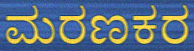
ಮರಣಕರ